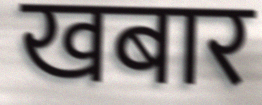
खबार